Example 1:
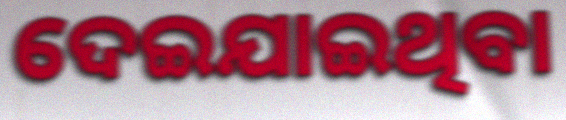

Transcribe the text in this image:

ଦେଇଯାଇଥିବା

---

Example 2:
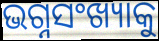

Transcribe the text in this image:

ଭଗ୍ନସଂଖ୍ୟାକୁ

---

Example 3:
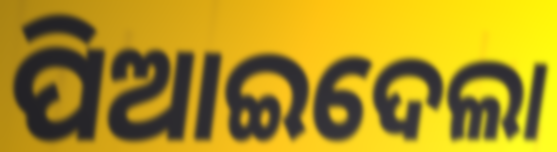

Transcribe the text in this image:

ପିଆଇଦେଲା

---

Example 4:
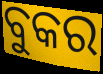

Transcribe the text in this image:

ବୁକର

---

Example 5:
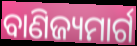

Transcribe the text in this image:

ବାଣିଜ୍ୟମାର୍ଗ